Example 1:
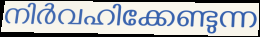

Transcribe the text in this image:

നിർവഹിക്കേണ്ടുന്ന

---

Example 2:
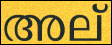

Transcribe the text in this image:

അല്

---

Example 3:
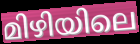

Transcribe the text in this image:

മിഴിയിലെ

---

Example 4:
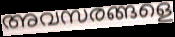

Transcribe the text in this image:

അവസരങ്ങളെ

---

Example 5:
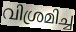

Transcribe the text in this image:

വിശ്രമിച്ച